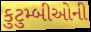
કુટુમ્બીઓની